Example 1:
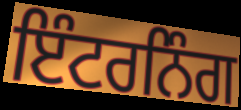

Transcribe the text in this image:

ਇੰਟਰਨਿੰਗ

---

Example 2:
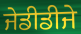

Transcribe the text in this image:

ਜੇਡੀਡੀਜੇ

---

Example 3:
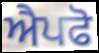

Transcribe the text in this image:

ਐਪਫੋ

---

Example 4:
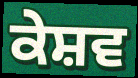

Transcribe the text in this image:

ਕੇਸ਼ਵ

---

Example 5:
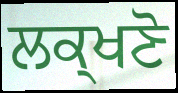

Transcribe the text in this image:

ਲਕ੍ਖਣੋ